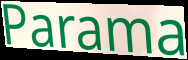
Parama